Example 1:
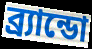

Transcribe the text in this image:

ব্র্যান্ডো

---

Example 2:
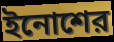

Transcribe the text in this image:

ইনোশের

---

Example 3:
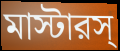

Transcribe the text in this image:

মাস্টারস্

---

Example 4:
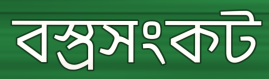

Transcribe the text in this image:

বস্ত্রসংকট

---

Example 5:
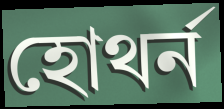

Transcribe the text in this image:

হোথর্ন